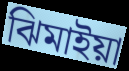
ঝিমাইয়া